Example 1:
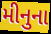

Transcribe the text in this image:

મીનુના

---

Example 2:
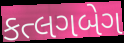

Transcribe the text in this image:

કત્લગબેગ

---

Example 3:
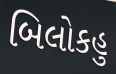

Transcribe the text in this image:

બિલોકહુ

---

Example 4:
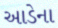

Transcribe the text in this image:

આડેના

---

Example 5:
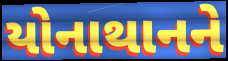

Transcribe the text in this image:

યોનાથાનને